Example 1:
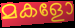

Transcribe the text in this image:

മകളോ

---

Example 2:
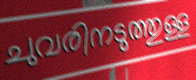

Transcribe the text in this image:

ചുവരിനടുത്തുള്ള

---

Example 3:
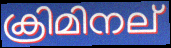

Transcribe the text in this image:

ക്രിമിനല്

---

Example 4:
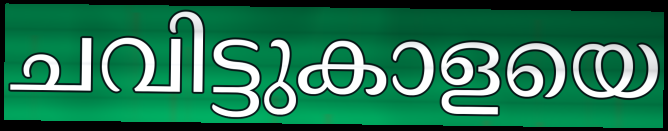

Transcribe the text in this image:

ചവിട്ടുകാളയെ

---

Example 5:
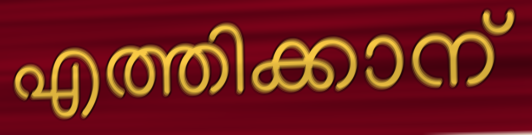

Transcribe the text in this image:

എത്തിക്കാന്